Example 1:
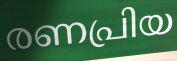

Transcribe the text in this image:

രണപ്രിയ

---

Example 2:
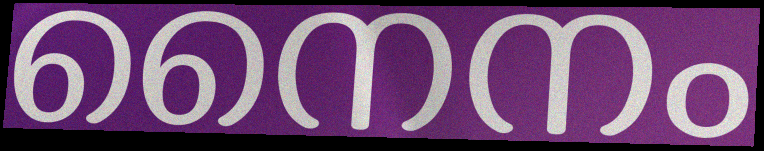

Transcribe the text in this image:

നൈനം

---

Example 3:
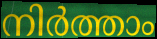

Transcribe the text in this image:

നിർത്താം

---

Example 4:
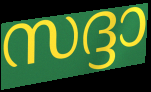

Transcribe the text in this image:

സദ്ദാ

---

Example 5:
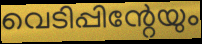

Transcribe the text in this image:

വെടിപ്പിന്റേയും